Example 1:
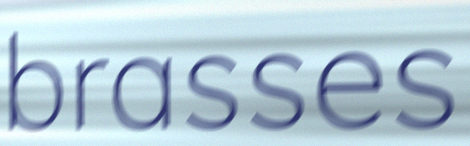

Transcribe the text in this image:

brasses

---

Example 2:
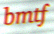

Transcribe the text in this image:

bmtf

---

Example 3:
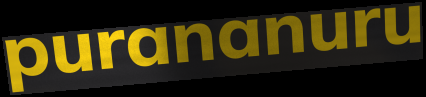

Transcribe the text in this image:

purananuru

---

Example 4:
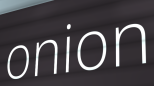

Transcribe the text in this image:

onion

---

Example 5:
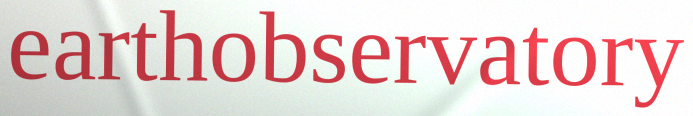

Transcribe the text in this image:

earthobservatory